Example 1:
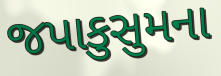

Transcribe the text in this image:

જપાકુસુમના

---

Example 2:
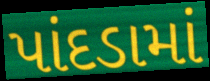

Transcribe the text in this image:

પાંદડામાં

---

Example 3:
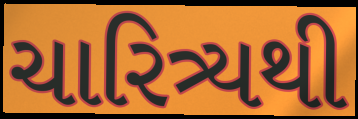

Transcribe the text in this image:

ચારિત્ર્યથી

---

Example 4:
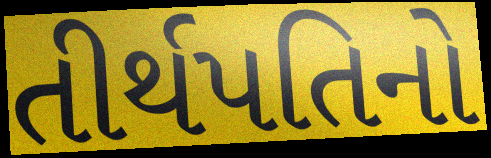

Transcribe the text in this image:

તીર્થપતિનો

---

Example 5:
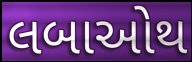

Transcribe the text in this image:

લબાઓથ